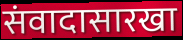
संवादासारखा